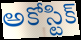
అకోస్టిక్